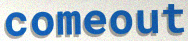
comeout